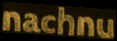
nachnu